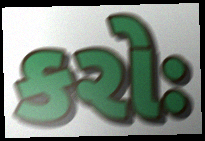
કરોઃ